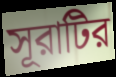
সূরাটির